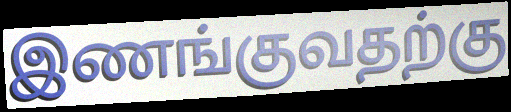
இணங்குவதற்கு